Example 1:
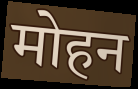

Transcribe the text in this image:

मोहन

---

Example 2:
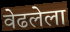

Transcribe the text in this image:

वेढलेला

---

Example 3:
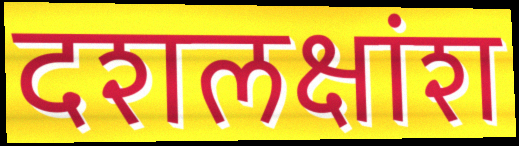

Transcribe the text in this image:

दशलक्षांश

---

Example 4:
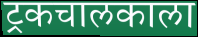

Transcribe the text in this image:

ट्रकचालकाला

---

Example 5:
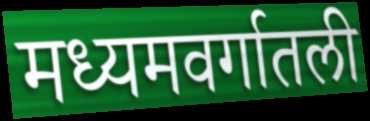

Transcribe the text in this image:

मध्यमवर्गातली